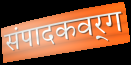
संपादकवर्ग